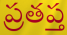
ప్రతప్త